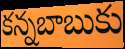
కన్నబాబుకు